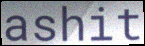
ashit